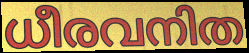
ധീരവനിത